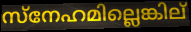
സ്നേഹമില്ലെങ്കില്